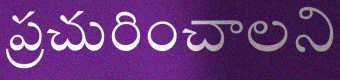
ప్రచురించాలని